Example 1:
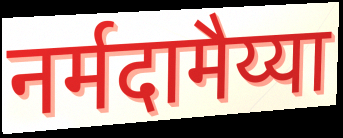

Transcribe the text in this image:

नर्मदामैय्या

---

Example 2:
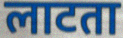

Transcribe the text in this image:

लाटता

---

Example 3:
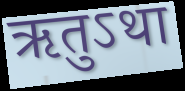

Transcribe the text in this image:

ऋतुऽथा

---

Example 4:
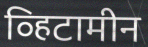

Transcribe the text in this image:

व्हिटामीन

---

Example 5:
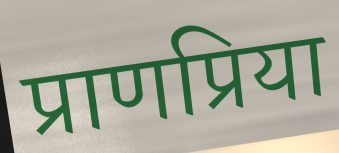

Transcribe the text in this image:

प्राणप्रिया